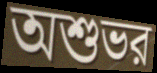
অশুভর